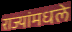
राज्यांमधले